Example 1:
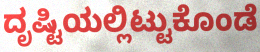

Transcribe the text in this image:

ದೃಷ್ಟಿಯಲ್ಲಿಟ್ಟುಕೊಂಡೆ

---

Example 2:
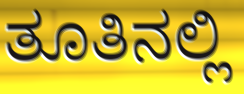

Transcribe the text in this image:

ತೂತಿನಲ್ಲಿ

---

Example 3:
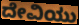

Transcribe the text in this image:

ದೇವಿಯು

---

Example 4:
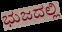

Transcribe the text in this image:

ಭುಜದಲ್ಲಿ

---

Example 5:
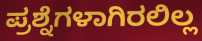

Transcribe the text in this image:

ಪ್ರಶ್ನೆಗಳಾಗಿರಲಿಲ್ಲ